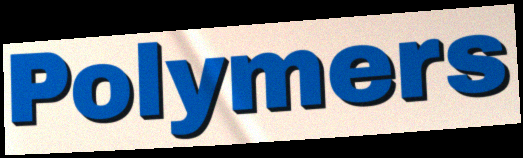
Polymers